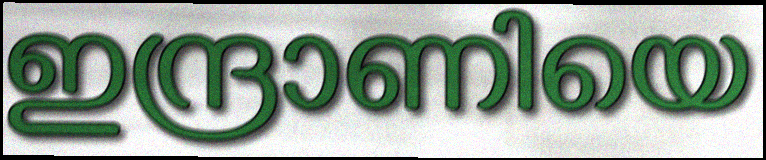
ഇന്ദ്രാണിയെ